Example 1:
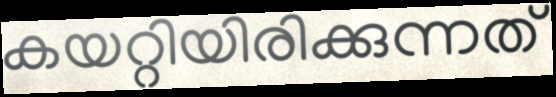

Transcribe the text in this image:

കയറ്റിയിരിക്കുന്നത്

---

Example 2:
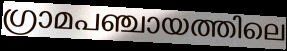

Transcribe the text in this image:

ഗ്രാമപഞ്ചായത്തിലെ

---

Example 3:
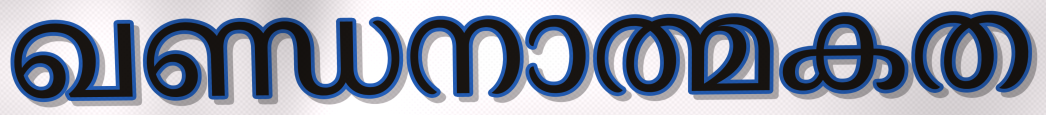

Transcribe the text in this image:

ഖണ്ഡനാത്മകത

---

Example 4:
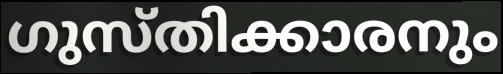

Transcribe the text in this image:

ഗുസ്തിക്കാരനും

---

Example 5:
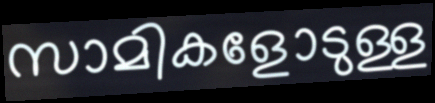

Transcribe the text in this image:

സാമികളോടുള്ള